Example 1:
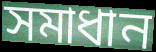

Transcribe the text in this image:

সমাধান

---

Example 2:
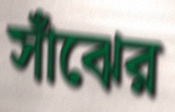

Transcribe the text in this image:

সাঁঝের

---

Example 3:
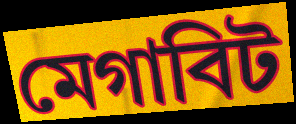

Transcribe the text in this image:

মেগাবিট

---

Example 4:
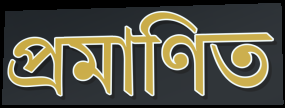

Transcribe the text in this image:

প্রমাণিত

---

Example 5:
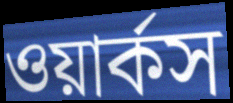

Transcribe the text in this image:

ওয়ার্কস